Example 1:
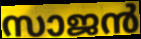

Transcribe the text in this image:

സാജൻ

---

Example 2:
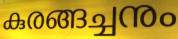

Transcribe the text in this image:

കുരങ്ങച്ചനും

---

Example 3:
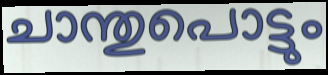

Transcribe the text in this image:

ചാന്തുപൊട്ടും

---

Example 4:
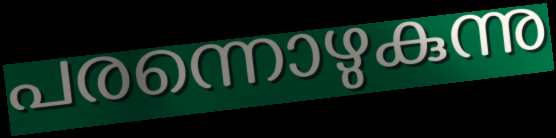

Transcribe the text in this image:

പരന്നൊഴുകുന്നു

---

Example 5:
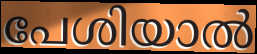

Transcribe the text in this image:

പേശിയാൽ